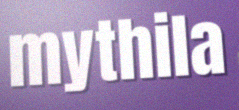
mythila